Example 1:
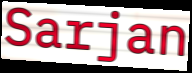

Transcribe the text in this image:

Sarjan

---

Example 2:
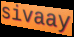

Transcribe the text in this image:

sivaay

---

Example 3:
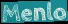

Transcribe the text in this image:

Menlo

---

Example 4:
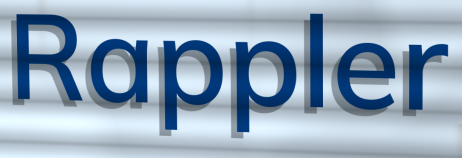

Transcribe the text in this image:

Rappler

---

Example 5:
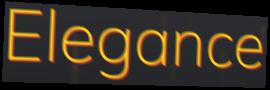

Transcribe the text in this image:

Elegance